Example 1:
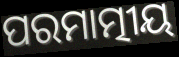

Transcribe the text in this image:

ପରମାତ୍ମୀୟ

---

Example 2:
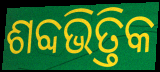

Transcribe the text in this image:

ଶବ୍ଦଭିତ୍ତିକ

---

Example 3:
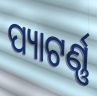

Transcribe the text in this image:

ପ୍ୟାଟର୍ଣ୍ଣ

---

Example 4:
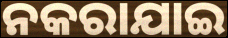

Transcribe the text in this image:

ନକରାଯାଇ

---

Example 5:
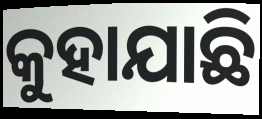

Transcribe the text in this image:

କୁହାଯାଛି